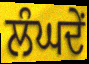
ਲੰਘਦੇਂ